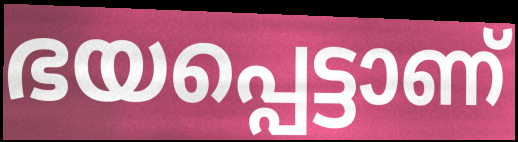
ഭയപ്പെട്ടാണ്